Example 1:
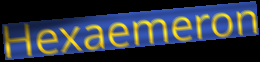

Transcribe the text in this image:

Hexaemeron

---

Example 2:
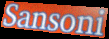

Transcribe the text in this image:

Sansoni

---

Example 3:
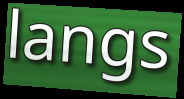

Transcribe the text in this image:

langs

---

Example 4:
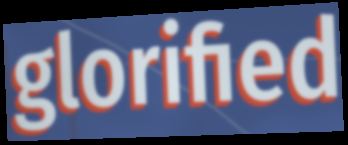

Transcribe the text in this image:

glorified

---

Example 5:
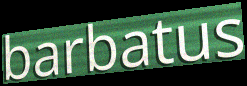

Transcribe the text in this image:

barbatus